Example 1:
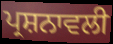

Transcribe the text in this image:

ਪ੍ਰਸ਼ਨਾਵਲੀ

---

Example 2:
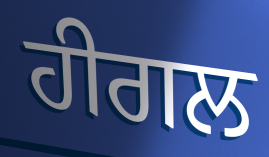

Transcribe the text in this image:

ਹੀਗਲ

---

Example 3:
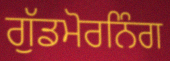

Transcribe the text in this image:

ਗੁੱਡਮੋਰਨਿੰਗ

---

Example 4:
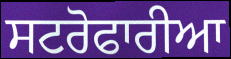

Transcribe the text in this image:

ਸਟਰੋਫਾਰੀਆ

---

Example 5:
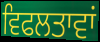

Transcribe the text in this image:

ਵਿਫਲਤਾਵਾਂ